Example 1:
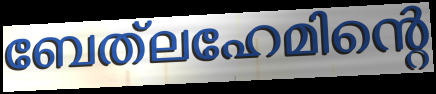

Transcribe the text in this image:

ബേത്‌ലഹേമിന്റെ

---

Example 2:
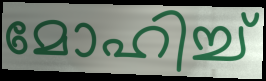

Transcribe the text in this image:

മോഹിച്ച്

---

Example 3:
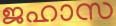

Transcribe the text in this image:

ജഹാസ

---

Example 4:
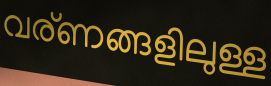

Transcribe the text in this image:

വര്ണങ്ങളിലുള്ള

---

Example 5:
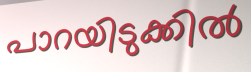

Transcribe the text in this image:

പാറയിടുക്കിൽ